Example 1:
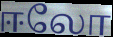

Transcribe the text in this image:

ஈலோ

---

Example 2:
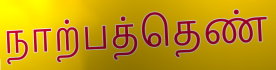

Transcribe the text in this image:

நாற்பத்தெண்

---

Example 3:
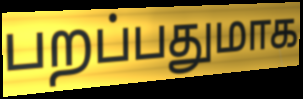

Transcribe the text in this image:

பறப்பதுமாக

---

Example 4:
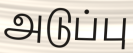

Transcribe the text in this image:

அடுப்பு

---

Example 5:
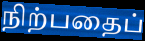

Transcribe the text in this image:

நிற்பதைப்